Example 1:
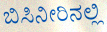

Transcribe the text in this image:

ಬಿಸಿನೀರಿನಲ್ಲಿ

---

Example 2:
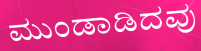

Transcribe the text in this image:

ಮುಂಡಾಡಿದವು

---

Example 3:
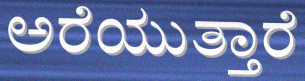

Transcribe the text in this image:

ಅರೆಯುತ್ತಾರೆ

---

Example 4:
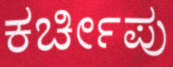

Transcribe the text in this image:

ಕರ್ಚೀಪು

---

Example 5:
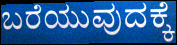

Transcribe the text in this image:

ಬರೆಯುವುದಕ್ಕೆ